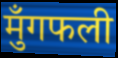
मुँगफली